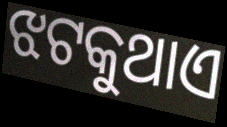
ଝଟକୁଥାଏ